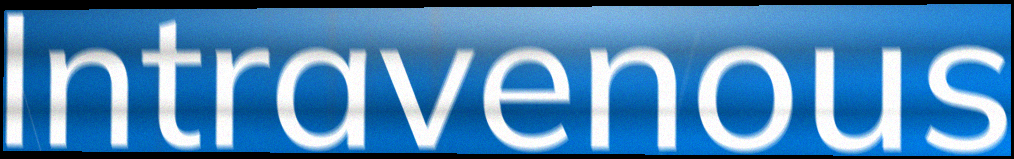
Intravenous